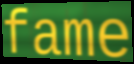
fame